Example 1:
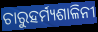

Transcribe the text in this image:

ଚାରୁହର୍ମ୍ୟଶାଳିନୀ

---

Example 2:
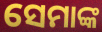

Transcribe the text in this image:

ସେମାଙ୍କ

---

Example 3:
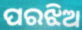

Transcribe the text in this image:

ପରଝିଅ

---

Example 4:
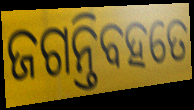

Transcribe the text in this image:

ଜଗନ୍ତିବହତେ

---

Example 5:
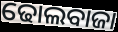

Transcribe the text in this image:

ଢୋଲବାଜା